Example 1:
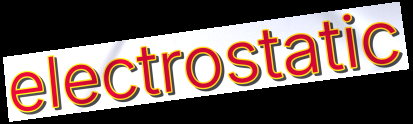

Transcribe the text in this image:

electrostatic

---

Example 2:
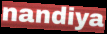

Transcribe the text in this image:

nandiya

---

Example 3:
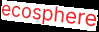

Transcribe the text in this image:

ecosphere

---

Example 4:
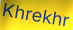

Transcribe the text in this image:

Khrekhr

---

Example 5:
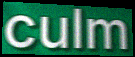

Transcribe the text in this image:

culm